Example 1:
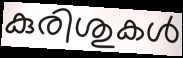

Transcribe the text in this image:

കുരിശുകൾ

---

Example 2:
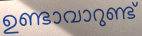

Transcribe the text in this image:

ഉണ്ടാവാറുണ്ട്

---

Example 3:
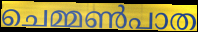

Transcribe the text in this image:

ചെമ്മൺപാത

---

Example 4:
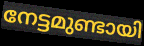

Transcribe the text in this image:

നേട്ടമുണ്ടായി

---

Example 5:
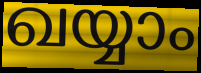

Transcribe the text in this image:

ഖയ്യാം